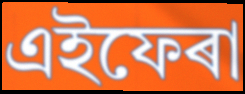
এইফেৰা